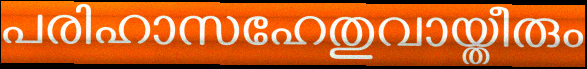
പരിഹാസഹേതുവായ്തീരും